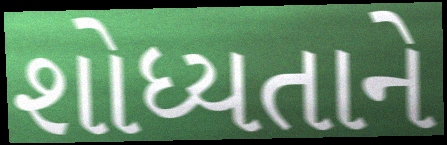
શોધ્યતાને